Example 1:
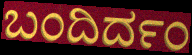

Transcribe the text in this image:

ಬಂದಿರ್ದಂ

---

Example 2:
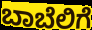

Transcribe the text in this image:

ಬಾಬೆಲಿಗೆ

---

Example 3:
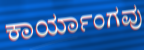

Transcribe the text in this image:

ಕಾರ್ಯಾಂಗವು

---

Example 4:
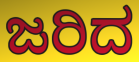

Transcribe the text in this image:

ಜರಿದ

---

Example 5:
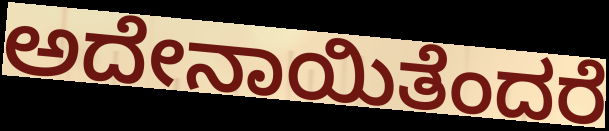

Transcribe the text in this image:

ಅದೇನಾಯಿತೆಂದರೆ